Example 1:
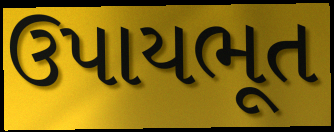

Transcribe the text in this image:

ઉપાયભૂત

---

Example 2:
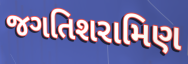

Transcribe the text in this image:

જગતિશરામિણ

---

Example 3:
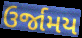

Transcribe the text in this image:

ઉર્જામય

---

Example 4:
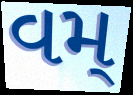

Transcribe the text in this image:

વમ્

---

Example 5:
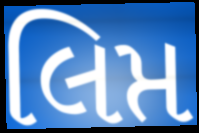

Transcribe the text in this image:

લિપ્ત